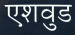
एशवुड